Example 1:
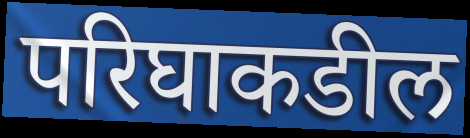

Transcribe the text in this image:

परिघाकडील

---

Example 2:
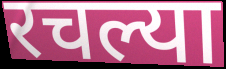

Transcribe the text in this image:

रचल्या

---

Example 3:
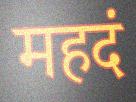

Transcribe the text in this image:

महदं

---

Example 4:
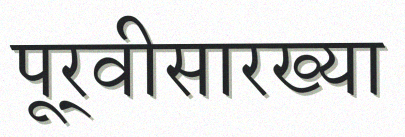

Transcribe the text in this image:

पूर्वीसारख्या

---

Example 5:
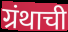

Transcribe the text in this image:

ग्रंथाची